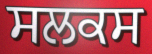
ਸਲਕਸ